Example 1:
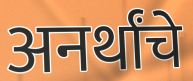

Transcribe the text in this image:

अनर्थांचे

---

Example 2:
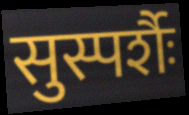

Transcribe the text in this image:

सुस्पर्शैः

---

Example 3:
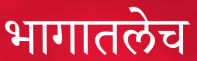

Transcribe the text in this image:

भागातलेच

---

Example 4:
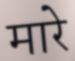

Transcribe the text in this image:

मारे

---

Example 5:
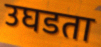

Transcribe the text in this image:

उघडता